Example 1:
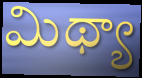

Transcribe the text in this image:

మిథ్యా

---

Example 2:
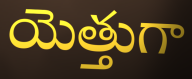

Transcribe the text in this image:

యెత్తుగా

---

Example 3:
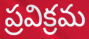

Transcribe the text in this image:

ప్రవిక్రమ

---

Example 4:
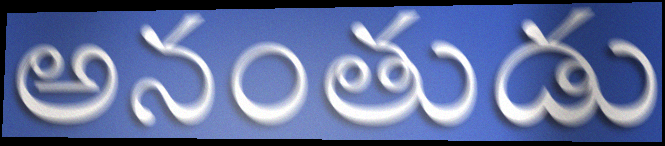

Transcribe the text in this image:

అనంతుడు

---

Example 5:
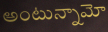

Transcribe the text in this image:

అంటున్నామో